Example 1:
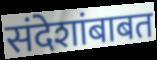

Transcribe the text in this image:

संदेशांबाबत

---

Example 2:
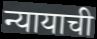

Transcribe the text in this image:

न्यायाची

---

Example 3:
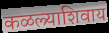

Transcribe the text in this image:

कळल्याशिवाय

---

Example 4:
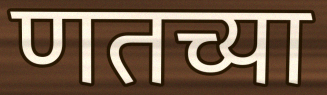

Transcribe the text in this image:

णतच्या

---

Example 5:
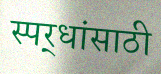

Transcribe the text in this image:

स्पर्धांसाठी